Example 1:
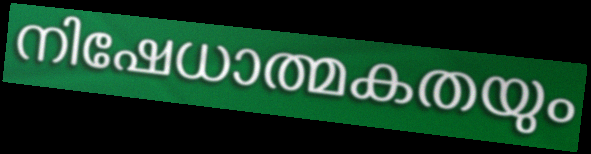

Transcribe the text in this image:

നിഷേധാത്മകതയും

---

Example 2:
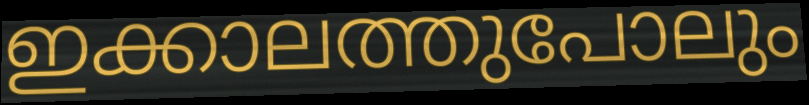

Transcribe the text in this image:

ഇക്കാലത്തുപോലും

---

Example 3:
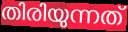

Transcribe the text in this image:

തിരിയുന്നത്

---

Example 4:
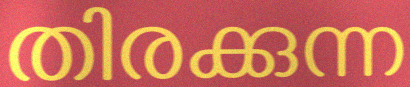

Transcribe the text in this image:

തിരക്കുന്ന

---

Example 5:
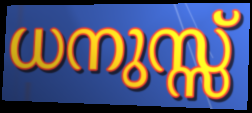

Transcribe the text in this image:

ധനുസ്സ്